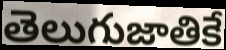
తెలుగుజాతికే